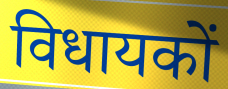
विधायकों